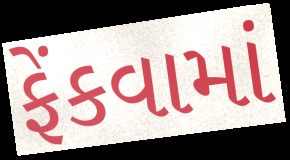
ફેંકવામાં